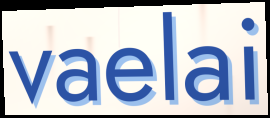
vaelai